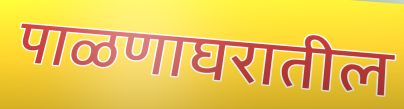
पाळणाघरातील